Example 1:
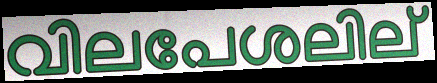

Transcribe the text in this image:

വിലപേശലില്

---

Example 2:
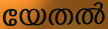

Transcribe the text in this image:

യേതൽ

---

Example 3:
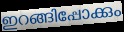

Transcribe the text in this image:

ഇറങ്ങിപ്പോക്കും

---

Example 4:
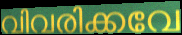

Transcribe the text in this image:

വിവരിക്കവേ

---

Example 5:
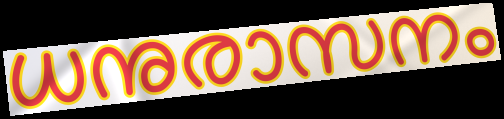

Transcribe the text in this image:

ധനുരാസനം